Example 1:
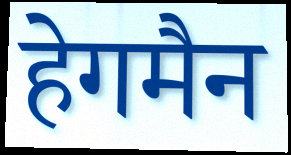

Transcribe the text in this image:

हेगमैन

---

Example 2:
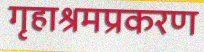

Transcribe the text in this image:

गृहाश्रमप्रकरण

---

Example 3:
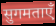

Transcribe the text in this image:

सुगमताएँ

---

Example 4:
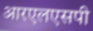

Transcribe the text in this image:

आरएलएसपी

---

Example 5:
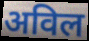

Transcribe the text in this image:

अविल